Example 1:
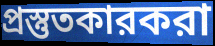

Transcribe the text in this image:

প্রস্তুতকারকরা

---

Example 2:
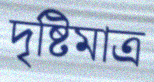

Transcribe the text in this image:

দৃষ্টিমাত্র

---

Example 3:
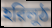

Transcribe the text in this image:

হরিলুঠ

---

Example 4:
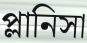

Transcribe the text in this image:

প্লানিসা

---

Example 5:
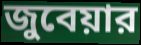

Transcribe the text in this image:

জুবেয়ার